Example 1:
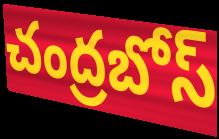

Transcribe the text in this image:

చంద్రబోస్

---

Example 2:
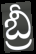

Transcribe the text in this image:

బ్రీ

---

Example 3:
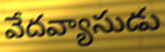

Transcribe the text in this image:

వేదవ్యాసుడు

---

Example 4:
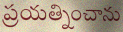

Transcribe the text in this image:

ప్రయత్నించాను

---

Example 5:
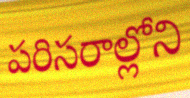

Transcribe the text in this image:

పరిసరాల్లోని